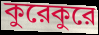
কুরেকুরে